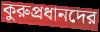
কুরুপ্রধানদের